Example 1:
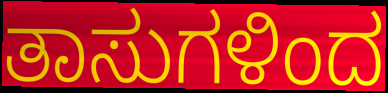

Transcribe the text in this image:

ತಾಸುಗಳಿಂದ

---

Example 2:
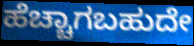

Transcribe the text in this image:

ಹೆಚ್ಚಾಗಬಹುದೇ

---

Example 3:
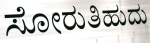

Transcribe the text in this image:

ಸೋರುತಿಹುದು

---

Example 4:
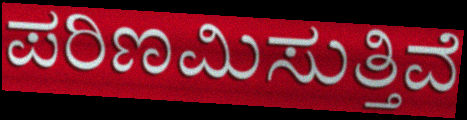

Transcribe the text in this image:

ಪರಿಣಮಿಸುತ್ತಿವೆ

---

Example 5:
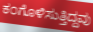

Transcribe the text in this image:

ಕಂಗೊಳಿಸುತ್ತಿದ್ದವು